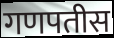
गणपतीस